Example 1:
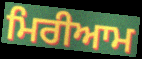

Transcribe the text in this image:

ਮਿਰੀਆਮ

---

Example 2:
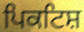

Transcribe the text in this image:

ਪਿਕਟਿਸ਼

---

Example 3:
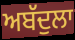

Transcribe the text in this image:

ਅਬੱਦੁਲਾ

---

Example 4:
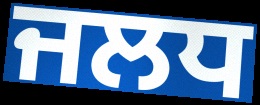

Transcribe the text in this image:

ਜਲਧ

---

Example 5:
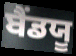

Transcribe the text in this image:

ਬੈਂਡਯੂ